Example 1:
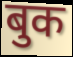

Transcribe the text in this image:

बुक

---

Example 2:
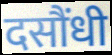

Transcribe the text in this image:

दसौंधी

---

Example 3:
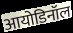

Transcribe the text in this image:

आयोडिनॉल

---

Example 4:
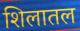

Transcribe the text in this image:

शिलातल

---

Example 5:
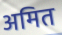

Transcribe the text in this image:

अमित